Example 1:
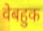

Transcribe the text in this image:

वेबहुक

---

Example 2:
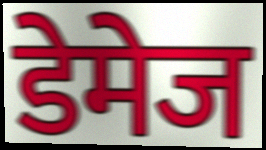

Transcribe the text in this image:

डेमेज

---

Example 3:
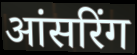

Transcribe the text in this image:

आंसरिंग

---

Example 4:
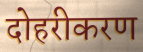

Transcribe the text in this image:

दोहरीकरण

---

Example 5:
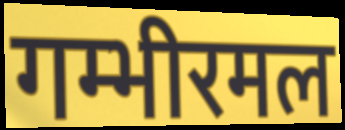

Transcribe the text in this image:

गम्भीरमल